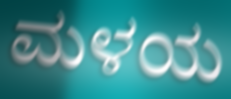
ಮಳಯ